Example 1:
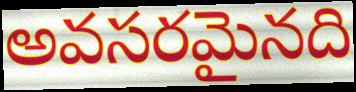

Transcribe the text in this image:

అవసరమైనది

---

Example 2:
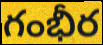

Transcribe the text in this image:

గంభీర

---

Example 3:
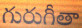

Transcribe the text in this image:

గురుగీతా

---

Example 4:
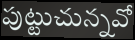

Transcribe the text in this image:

పుట్టుచున్నవో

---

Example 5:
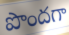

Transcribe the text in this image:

పొందగా